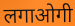
लगाओगी